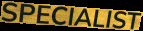
SPECIALIST